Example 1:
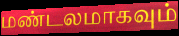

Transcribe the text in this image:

மண்டலமாகவும்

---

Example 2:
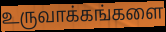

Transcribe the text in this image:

உருவாக்கங்களை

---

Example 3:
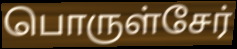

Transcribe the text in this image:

பொருள்சேர்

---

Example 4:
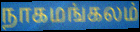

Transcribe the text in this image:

நாகமங்கலம்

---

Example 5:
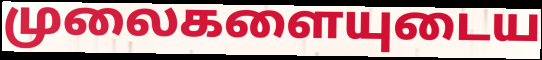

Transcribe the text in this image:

முலைகளையுடைய